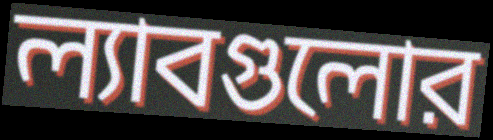
ল্যাবগুলোর